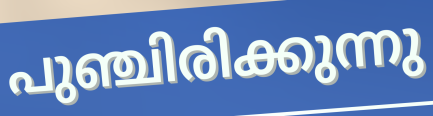
പുഞ്ചിരിക്കുന്നു